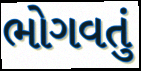
ભોગવતું